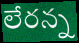
లేరన్న